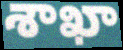
శాఖా